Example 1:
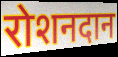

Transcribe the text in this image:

रोशनदान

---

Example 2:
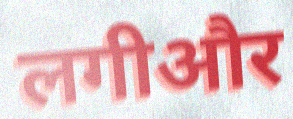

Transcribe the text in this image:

लगीऔर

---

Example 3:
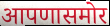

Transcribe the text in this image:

आपणासमोर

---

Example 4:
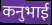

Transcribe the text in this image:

कनुभाई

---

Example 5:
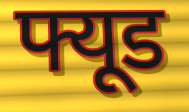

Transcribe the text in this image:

फ्यूड